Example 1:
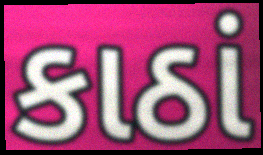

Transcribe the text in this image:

કાઠાં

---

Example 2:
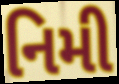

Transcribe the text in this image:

નિમી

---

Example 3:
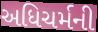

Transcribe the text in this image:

અધિચર્મની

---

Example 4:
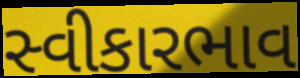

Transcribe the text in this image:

સ્વીકારભાવ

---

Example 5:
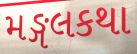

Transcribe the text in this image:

મઙ્ગલકથા